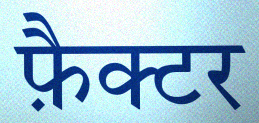
फ़ैक्टर